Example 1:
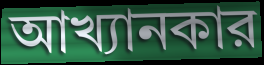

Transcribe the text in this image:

আখ্যানকার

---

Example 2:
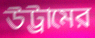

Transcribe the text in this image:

উট্রামের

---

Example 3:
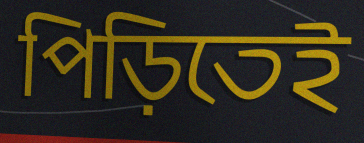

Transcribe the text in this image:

পিড়িতেই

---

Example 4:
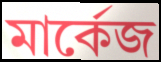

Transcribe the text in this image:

মার্কেজ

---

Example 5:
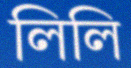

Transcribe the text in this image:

লিলি